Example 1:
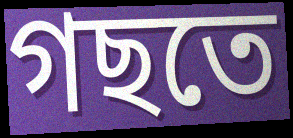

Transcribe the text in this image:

গছতে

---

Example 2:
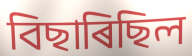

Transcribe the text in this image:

বিছাৰিছিল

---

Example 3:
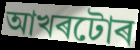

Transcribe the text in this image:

আখৰটোৰ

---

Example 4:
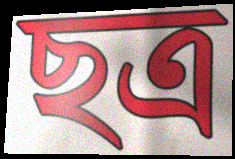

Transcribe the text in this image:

ছত্ৰ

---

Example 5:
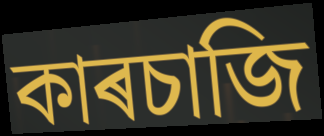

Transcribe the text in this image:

কাৰচাজি